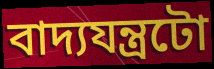
বাদ্যযন্ত্ৰটো